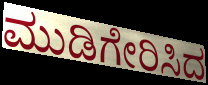
ಮುಡಿಗೇರಿಸಿದ